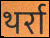
थर्रा